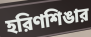
হরিণশিঙার